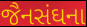
જૈનસંઘના